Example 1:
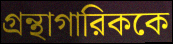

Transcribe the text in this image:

গ্রন্থাগারিককে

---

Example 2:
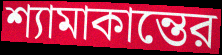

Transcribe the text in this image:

শ্যামাকান্তের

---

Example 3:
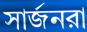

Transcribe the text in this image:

সার্জনরা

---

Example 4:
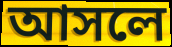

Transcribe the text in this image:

আসলে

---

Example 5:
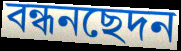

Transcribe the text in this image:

বন্ধনছেদন